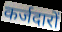
कर्जदारों